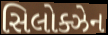
સિલોક્ઝેન